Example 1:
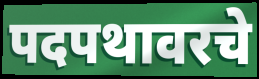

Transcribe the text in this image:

पदपथावरचे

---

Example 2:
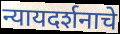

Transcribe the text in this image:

न्यायदर्शनाचे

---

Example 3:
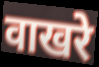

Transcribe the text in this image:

वाखरे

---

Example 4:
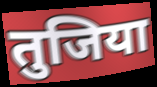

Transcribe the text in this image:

तुजिया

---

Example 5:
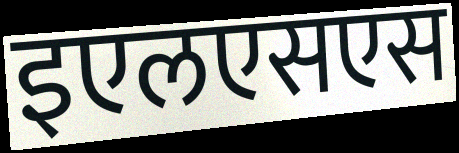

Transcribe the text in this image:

इएलएसएस